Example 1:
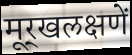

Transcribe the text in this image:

मूर्खलक्षणें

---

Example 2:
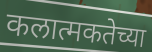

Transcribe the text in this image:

कलात्मकतेच्या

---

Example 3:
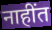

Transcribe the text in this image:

नाहींत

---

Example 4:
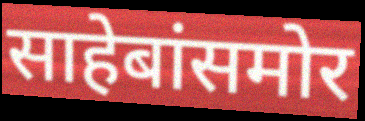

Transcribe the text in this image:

साहेबांसमोर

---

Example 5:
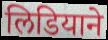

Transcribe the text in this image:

लिडियाने